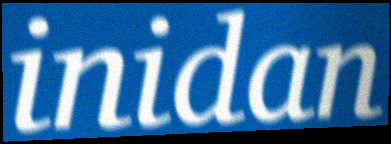
inidan